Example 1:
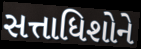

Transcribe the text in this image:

સત્તાધિશોને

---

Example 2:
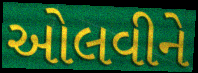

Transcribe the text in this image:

ઓલવીને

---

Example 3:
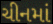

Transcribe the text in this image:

ચીનમાં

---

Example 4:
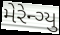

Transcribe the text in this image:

મેરેન્ગ્યુ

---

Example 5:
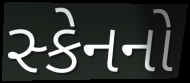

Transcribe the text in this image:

સ્કેનનો